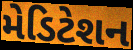
મેડિટેશન